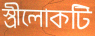
স্ত্রীলোকটি